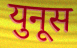
युनूस